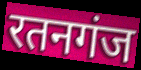
रतनगंज